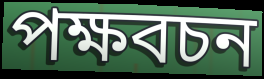
পক্ষবচন